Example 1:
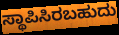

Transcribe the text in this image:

ಸ್ಥಾಪಿಸಿರಬಹುದು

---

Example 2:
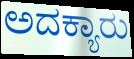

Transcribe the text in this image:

ಅದಕ್ಯಾರು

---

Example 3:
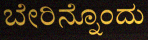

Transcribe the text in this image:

ಬೇರಿನ್ನೊಂದು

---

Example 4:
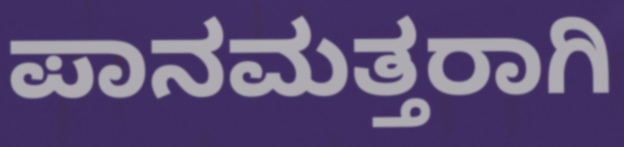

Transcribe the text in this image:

ಪಾನಮತ್ತರಾಗಿ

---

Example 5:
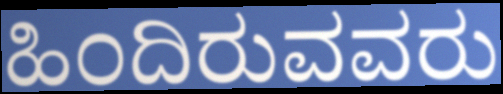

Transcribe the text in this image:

ಹಿಂದಿರುವವರು